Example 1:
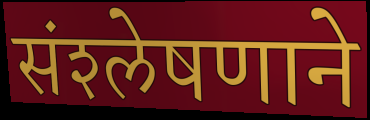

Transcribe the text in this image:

संश्लेषणाने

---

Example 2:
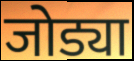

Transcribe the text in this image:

जोड्या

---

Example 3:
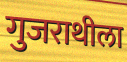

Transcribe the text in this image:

गुजराथीला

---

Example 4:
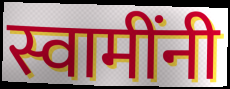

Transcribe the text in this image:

स्वामींनी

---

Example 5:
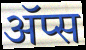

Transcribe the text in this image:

ॲप्स